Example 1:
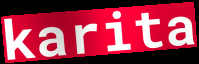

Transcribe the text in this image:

karita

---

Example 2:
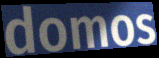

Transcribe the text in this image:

domos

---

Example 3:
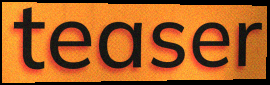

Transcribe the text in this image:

teaser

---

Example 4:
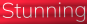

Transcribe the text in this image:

Stunning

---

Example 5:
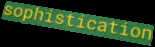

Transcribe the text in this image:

sophistication